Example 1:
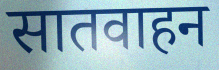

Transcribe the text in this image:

सातवाहन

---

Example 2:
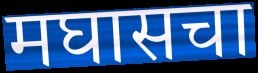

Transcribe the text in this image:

मघासचा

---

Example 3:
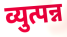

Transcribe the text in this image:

व्युत्पन्न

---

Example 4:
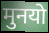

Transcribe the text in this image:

मुनयो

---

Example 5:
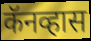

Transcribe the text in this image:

कॅनव्हास